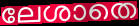
ലേശാതെ